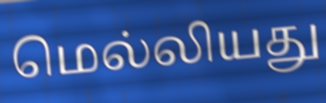
மெல்லியது